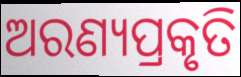
ଅରଣ୍ୟପ୍ରକୃତି